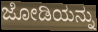
ಜೋಡಿಯನ್ನು